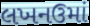
લખનઉમાં